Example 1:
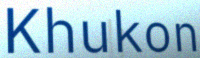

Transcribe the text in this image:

Khukon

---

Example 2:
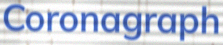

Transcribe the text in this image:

Coronagraph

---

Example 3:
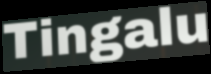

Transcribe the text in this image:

Tingalu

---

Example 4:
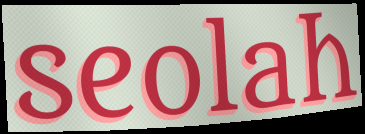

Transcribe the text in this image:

seolah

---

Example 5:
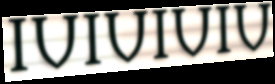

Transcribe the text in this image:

IUIUIUIU